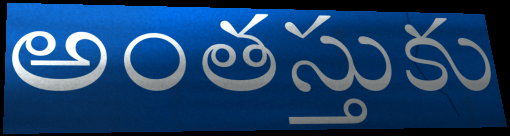
అంతస్తుకు